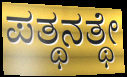
ಪತ್ಥನತ್ಥೇ